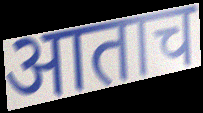
आताच